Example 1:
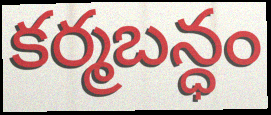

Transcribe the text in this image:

కర్మబన్ధం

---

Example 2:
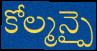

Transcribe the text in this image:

కోల్మన్పై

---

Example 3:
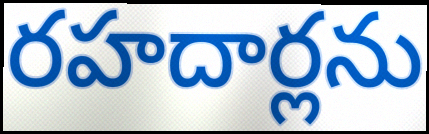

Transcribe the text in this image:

రహదార్లను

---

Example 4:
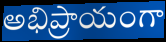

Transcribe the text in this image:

అభిప్రాయంగా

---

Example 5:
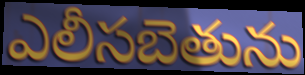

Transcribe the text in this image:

ఎలీసబెతును